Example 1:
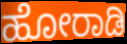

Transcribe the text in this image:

ಹೋರಾಡಿ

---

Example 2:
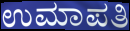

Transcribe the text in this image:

ಉಮಾಪತಿ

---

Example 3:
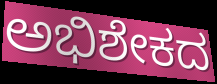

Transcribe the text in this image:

ಅಭಿಶೇಕದ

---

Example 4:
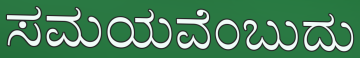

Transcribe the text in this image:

ಸಮಯವೆಂಬುದು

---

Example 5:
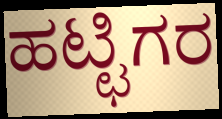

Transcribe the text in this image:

ಹಟ್ಟಿಗರ